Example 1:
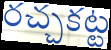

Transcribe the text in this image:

రచ్చకట్ట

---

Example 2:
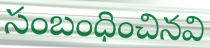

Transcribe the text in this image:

సంబంధించినవి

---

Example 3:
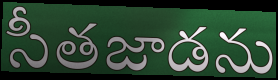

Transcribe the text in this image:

సీతజాడను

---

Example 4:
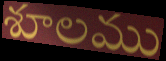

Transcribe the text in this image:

శూలము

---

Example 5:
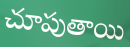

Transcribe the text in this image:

చూపుతాయి